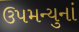
ઉપમન્યુનાં